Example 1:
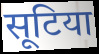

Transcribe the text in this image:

सूटिया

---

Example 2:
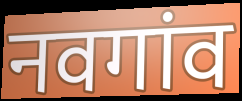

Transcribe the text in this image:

नवगांव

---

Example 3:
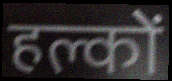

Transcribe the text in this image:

हल्कों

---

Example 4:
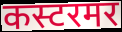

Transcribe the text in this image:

कस्टरमर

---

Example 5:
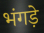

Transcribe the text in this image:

भंगड़े